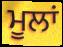
ਮੂਲਾਂ